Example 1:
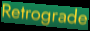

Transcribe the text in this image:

Retrograde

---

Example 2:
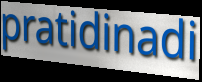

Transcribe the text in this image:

pratidinadi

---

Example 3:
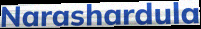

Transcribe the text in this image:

Narashardula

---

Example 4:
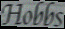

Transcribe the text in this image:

Hobbs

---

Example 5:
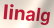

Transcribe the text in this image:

linalg